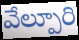
వేల్పూరి